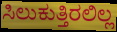
ಸಿಲುಕುತ್ತಿರಲಿಲ್ಲ